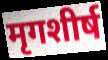
मृगशीर्ष